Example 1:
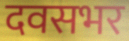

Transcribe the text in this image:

दवसभर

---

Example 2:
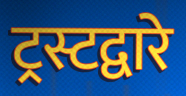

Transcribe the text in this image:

ट्रस्टद्वारे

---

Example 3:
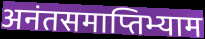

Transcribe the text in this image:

अनंतसमाप्तिभ्याम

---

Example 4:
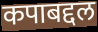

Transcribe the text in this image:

कपाबद्दल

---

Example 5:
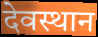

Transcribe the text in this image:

देवस्थान